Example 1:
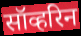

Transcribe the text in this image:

सॉव्हरिन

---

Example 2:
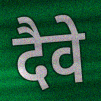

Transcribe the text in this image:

दैवे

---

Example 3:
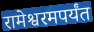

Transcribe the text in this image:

रामेश्वरमपर्यंत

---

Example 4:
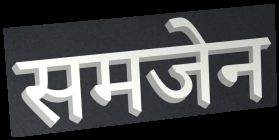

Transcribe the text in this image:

समजेन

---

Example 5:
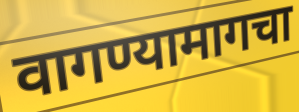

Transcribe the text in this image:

वागण्यामागचा